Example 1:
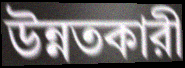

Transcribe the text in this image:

উন্নতকারী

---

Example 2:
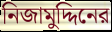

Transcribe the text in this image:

নিজামুদ্দিনের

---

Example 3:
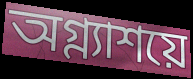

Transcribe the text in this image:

অগ্ন্যাশয়ে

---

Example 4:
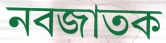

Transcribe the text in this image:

নবজাতক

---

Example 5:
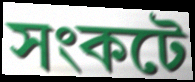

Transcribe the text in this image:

সংকটে